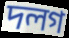
দলগ